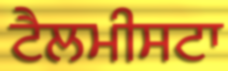
ਟੈਲਮੀਸਟਾ